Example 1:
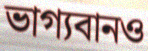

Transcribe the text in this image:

ভাগ্যবানও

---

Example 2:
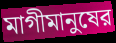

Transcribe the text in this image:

মাগীমানুষের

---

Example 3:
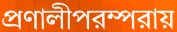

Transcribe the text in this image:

প্রণালীপরম্পরায়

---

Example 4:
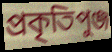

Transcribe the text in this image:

প্রকৃতিপুঞ্জ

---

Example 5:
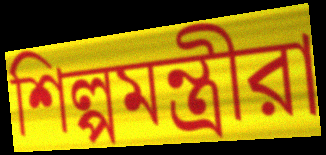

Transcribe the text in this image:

শিল্পমন্ত্রীরা